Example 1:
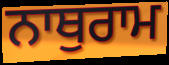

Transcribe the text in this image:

ਨਾਥੁਰਾਮ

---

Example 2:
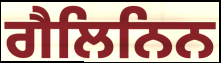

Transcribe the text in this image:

ਗੈਲਿਨਿਨ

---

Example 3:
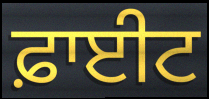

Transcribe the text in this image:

ਫ਼ਾਈਟ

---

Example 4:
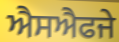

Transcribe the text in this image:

ਐਸਐਫਜੇ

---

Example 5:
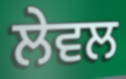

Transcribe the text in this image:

ਲੇਵਲ